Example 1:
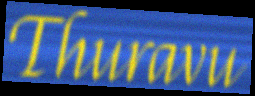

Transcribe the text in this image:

Thuravu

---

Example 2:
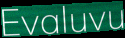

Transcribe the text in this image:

Evaluvu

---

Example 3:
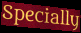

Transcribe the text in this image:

Specially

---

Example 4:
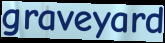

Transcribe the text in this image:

graveyard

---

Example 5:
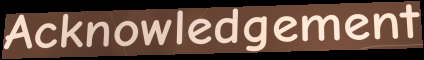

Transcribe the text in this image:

Acknowledgement